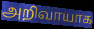
அறிவாயாக